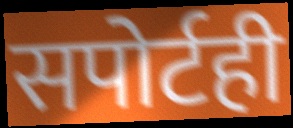
सपोर्टही